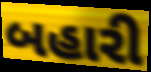
બહારી